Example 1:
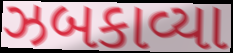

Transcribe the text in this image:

ઝબકાવ્યા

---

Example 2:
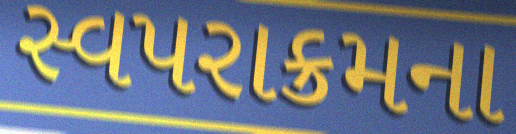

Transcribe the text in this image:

સ્વપરાક્રમના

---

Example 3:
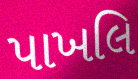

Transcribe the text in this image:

પાખલિ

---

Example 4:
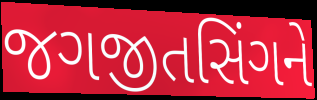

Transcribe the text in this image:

જગજીતસિંગને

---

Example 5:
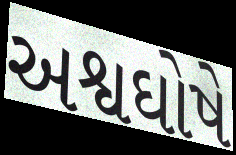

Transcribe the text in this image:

અશ્વઘોષે